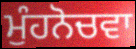
ਮੁੰਹਨੋਚਵਾ